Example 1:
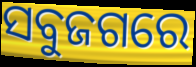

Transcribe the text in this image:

ସବୁଜଗରେ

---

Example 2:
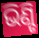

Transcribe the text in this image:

ଭିଣ୍ଡି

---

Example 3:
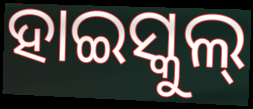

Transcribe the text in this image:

ହାଇସ୍କୁଲ୍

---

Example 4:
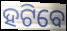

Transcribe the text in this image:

ହଟିବେ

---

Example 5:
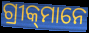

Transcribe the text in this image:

ଗ୍ରୀକ୍‌ମାନେ